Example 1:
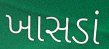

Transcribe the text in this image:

ખાસડાં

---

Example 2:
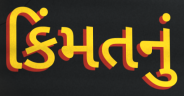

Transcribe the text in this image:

કિંમતનું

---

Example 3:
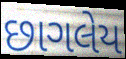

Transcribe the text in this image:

છાગલેય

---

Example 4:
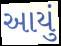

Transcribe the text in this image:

આયું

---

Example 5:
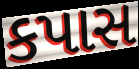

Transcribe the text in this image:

કપાસ